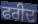
ਫਰੀਦ